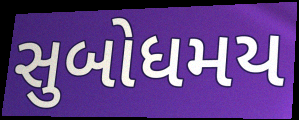
સુબોધમય